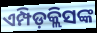
ଏମ୍ପିଡ଼କ୍ଲିସଙ୍କ